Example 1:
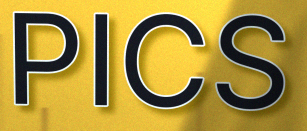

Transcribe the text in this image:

PICS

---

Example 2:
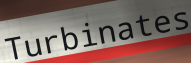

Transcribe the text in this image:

Turbinates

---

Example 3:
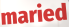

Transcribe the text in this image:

maried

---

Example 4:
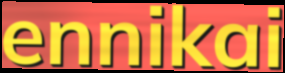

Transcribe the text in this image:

ennikai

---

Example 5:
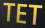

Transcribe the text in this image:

TET